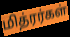
மித்ரர்கள்